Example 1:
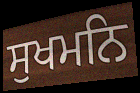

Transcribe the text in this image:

ਸੁਖਮਨਿ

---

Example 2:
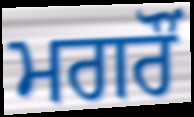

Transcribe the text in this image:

ਮਗਰੌਂ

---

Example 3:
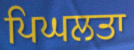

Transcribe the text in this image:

ਪਿਘਲਤਾ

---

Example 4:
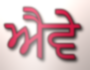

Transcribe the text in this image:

ਐਵੇ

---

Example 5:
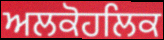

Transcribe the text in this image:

ਅਲਕੋਹਲਿਕ